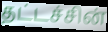
தட்டச்சின்